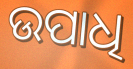
ଉପାଧି